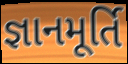
જ્ઞાનમૂર્તિ